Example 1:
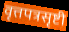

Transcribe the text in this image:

वृत्तपत्रसृष्टी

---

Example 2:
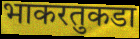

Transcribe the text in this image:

भाकरतुकडा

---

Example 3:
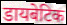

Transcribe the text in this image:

डायबेटिक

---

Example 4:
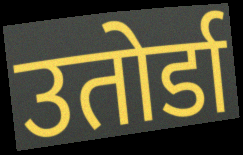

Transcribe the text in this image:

उतोर्डा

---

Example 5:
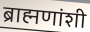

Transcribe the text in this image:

ब्राह्मणांशी